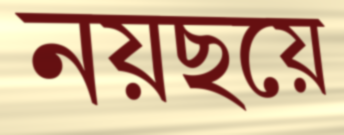
নয়ছয়ে